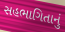
સહભાગિતાનું